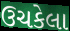
ઉચકેલા